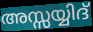
അസ്സയ്യിദ്